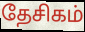
தேசிகம்